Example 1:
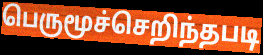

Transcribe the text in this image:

பெருமூச்செறிந்தபடி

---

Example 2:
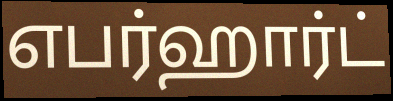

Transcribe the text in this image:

எபர்ஹார்ட்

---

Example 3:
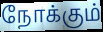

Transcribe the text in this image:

நோக்கும்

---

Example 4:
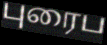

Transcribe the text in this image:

புரைப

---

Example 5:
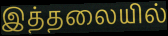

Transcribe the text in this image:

இத்தலையில்